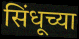
सिंधूच्या